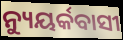
ନ୍ୟୁୟର୍କବାସୀ